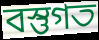
বস্তুগত